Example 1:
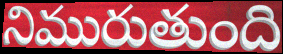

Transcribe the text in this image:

నిమురుతుంది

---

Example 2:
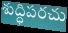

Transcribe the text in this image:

శుద్ధిపరచు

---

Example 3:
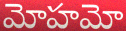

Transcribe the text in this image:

మోహమో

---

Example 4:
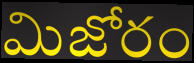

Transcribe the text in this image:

మిజోరం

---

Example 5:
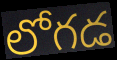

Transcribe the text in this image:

లోగడ